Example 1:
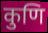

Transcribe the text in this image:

कुणि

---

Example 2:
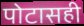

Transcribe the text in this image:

पोटासही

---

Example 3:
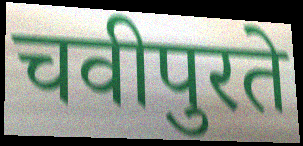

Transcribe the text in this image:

चवीपुरते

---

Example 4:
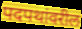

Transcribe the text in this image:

पदपथांवरील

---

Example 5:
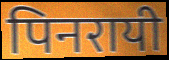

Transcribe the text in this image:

पिनरायी